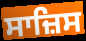
ਸਾਜ਼ਿਸ